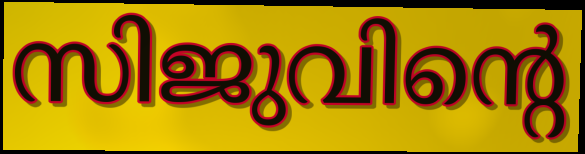
സിജുവിന്റെ